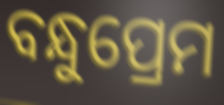
ବନ୍ଧୁପ୍ରେମ